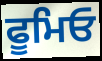
ਫੂਮਿਓ